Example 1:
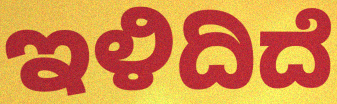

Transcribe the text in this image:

ಇಳಿದಿದೆ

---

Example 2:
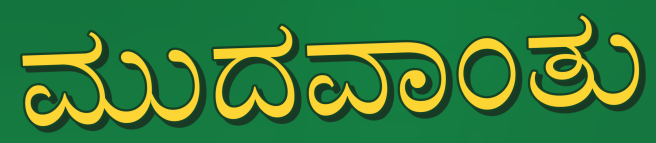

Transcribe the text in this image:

ಮುದವಾಂತು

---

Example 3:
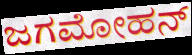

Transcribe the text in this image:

ಜಗಮೋಹನ್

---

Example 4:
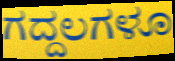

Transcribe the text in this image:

ಗದ್ದಲಗಳೂ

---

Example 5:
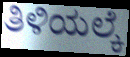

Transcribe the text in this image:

ತಿಳಿಯಲ್ಕೆ